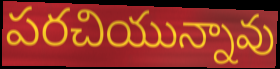
పరచియున్నావు